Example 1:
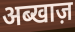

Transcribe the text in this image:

अब्खाज़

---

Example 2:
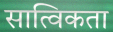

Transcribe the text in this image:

सात्विकता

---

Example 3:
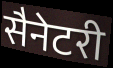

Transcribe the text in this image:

सैनेटरी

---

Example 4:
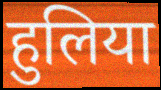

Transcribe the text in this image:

हुलिया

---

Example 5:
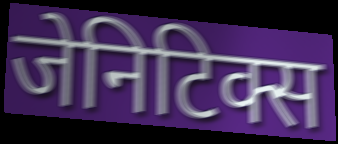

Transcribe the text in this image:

जेनिटिक्स